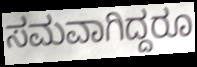
ಸಮವಾಗಿದ್ದರೂ